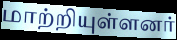
மாற்றியுள்ளனர்